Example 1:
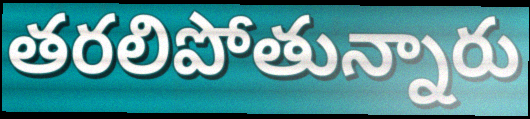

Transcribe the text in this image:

తరలిపోతున్నారు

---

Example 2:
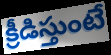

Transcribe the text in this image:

క్రీడిస్తుంటే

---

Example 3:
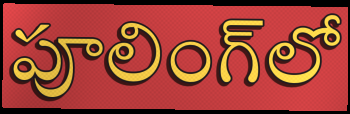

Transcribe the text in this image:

పూలింగ్‌లో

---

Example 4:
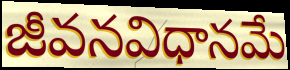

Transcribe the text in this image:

జీవనవిధానమే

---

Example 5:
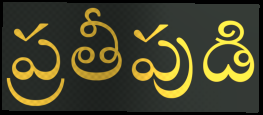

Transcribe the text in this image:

ప్రతీపుడి